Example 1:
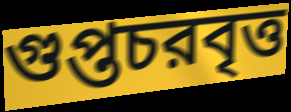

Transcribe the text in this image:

গুপ্তচরবৃত্ত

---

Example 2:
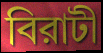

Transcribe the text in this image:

বিরাটী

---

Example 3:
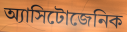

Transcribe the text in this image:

অ্যাসিটোজেনিক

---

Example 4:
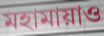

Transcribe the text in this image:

মহামায়াও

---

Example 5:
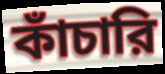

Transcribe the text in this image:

কাঁচারি